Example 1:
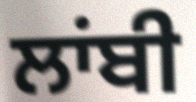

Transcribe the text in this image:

ਲਾਂਬੀ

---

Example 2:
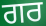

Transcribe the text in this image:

ਗਰ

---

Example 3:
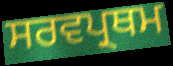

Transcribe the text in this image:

ਸਰਵਪ੍ਰਥਮ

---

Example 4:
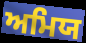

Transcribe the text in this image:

ਅਮਿਯ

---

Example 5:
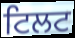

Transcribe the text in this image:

ਟਿਲਟ